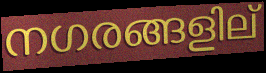
നഗരങ്ങളില്